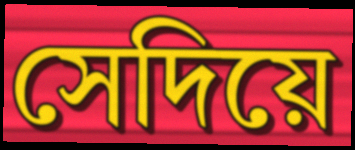
সেদিয়ে